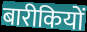
बारीकियों